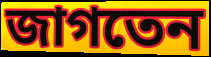
জাগতেন